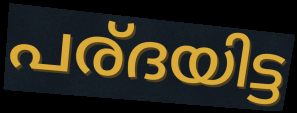
പര്ദയിട്ട